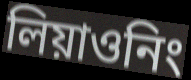
লিয়াওনিং